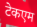
टेकएम